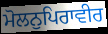
ਮੋਲਨੁਪਿਰਾਵੀਰ